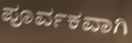
ಪೂರ್ವಕವಾಗಿ